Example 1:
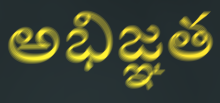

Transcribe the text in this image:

అభిజ్ఞత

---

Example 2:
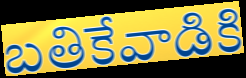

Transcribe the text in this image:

బతికేవాడికి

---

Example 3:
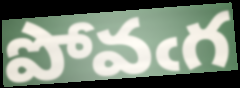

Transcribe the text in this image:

పోవఁగ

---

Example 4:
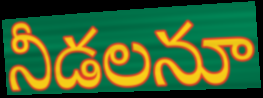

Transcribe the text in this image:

నీడలనూ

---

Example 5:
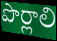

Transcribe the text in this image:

పొర్లాలి